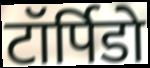
टॉर्पिडो